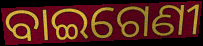
ବାଇଗେଣୀ